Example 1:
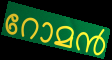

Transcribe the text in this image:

റോമൻ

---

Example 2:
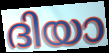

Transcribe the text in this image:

ദിയാ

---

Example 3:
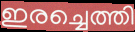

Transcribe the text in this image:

ഇരച്ചെത്തി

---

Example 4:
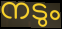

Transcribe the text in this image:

നടും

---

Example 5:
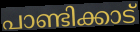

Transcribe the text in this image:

പാണ്ടിക്കാട്